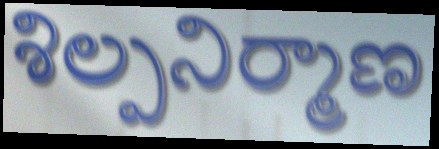
శిల్పనిర్మాణ